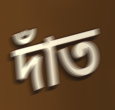
দাঁত